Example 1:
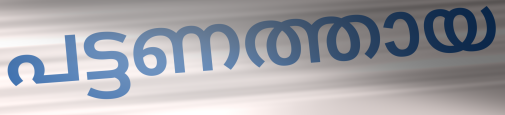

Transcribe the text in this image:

പട്ടണത്തായ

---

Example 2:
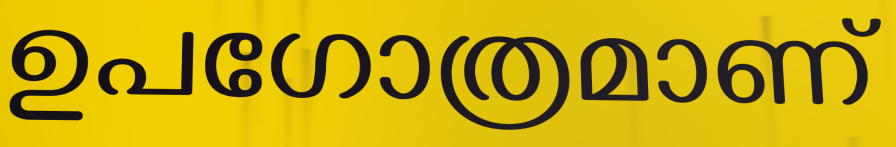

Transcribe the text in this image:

ഉപഗോത്രമാണ്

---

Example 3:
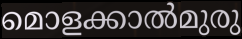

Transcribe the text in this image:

മൊളക്കാൽമുരു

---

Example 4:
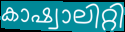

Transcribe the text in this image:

കാഷ്വാലിറ്റി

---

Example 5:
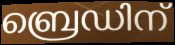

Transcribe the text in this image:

ബ്രെഡിന്